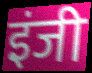
इंजी